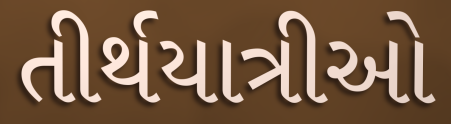
તીર્થયાત્રીઓ